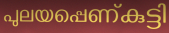
പുലയപ്പെണ്കുട്ടി